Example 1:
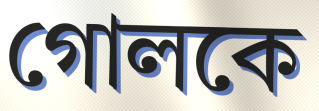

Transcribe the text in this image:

গোলকে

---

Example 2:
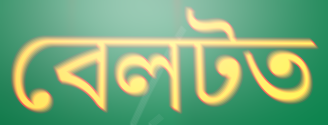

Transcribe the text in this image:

বেলটত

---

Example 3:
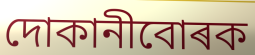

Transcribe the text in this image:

দোকানীবোৰক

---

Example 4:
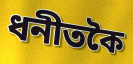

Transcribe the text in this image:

ধনীতকৈ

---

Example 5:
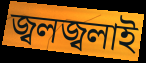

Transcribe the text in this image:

জ্বলজ্বলাই